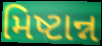
મિષ્ટાન્ન